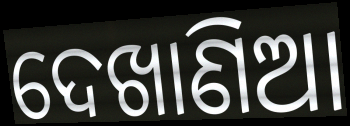
ଦେଖାଣିଆ